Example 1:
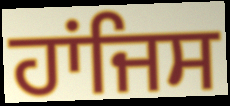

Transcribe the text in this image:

ਹਾਂਜਿਸ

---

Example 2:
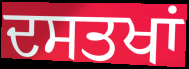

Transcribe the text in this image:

ਦਸਤਖਾਂ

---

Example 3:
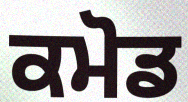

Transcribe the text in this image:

ਕਮੋਡ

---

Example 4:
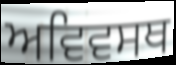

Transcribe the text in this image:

ਅਵਿਵਸਥ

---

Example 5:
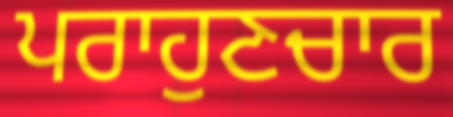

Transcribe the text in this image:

ਪਰਾਹੁਣਚਾਰ